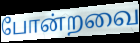
போன்றவை